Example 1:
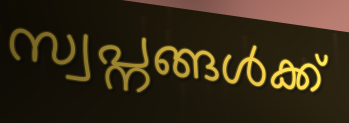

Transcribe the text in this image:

സ്വപ്നങ്ങൾക്ക്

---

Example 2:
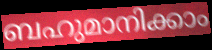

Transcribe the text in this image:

ബഹുമാനിക്കാം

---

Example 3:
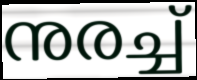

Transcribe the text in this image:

നുരച്ച്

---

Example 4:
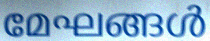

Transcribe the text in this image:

മേഘങ്ങൾ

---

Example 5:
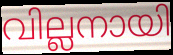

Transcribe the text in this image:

വില്ലനായി